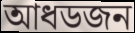
আধডজন